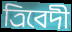
ত্রিবেদী